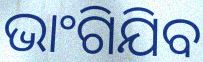
ଭାଂଗିଯିବ